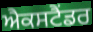
ਐਕਸਟੈਂਡਰ